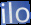
ilo